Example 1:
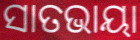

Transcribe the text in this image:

ସାତଭାୟା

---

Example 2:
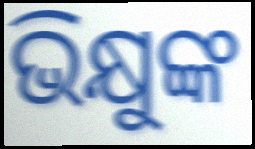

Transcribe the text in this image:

ଭିକ୍ଷୁଙ୍କ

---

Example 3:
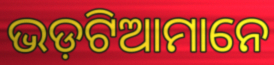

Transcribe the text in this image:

ଭଡ଼ଟିଆମାନେ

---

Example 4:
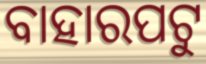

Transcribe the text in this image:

ବାହାରପଟୁ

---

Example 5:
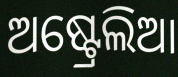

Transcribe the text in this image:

ଅଷ୍ଟ୍ରେଲିଆ